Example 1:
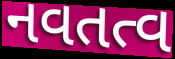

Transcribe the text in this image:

નવતત્વ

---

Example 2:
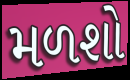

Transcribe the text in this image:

મળશો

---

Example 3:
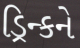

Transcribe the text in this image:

ડ્રિન્કને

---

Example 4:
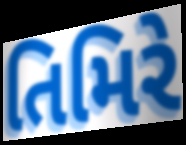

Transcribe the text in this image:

તિમિરે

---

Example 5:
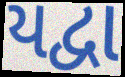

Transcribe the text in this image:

યદ્વા